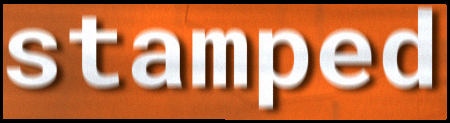
stamped